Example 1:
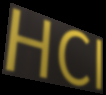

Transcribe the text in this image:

HCI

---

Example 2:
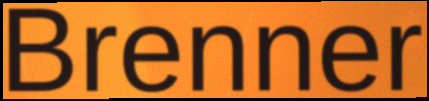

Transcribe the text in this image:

Brenner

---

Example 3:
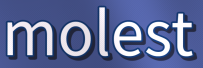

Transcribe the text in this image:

molest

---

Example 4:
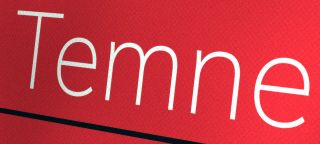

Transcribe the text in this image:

Temne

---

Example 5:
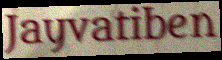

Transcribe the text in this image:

Jayvatiben